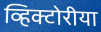
व्हिक्टोरीया